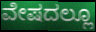
ವೇಷದಲ್ಲೂ